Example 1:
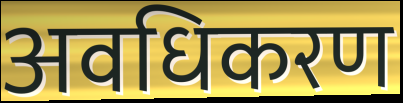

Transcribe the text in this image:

अवधिकरण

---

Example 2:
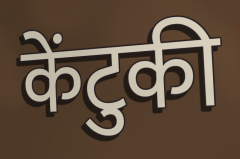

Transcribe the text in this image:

केंटुकी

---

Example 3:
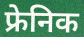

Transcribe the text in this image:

फ्रेनिक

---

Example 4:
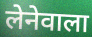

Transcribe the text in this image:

लेनेवाला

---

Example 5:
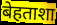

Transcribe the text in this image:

बेहताशा